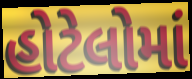
હોટેલોમાં